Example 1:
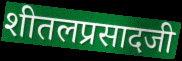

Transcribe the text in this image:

शीतलप्रसादजी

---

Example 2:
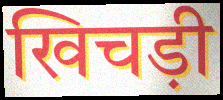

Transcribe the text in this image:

खिचड़ी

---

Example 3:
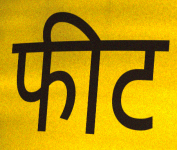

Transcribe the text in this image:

फीट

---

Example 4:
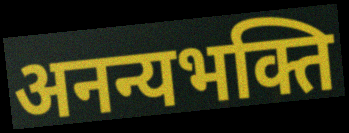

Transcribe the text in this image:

अनन्यभक्ति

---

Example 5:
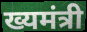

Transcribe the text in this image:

ख्यमंत्री